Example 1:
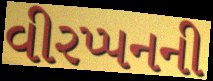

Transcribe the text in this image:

વીરપ્પનની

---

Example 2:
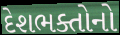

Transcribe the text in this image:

દેશભક્તોનો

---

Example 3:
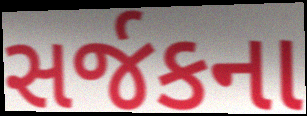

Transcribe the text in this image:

સર્જકના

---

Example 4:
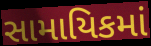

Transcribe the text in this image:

સામાયિકમાં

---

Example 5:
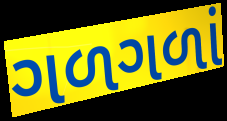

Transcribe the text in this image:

ગળગળાં